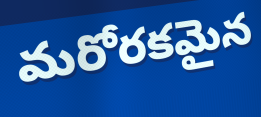
మరోరకమైన